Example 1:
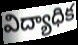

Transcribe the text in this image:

విద్యాధిక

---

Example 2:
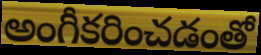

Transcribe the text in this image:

అంగీకరించడంతో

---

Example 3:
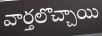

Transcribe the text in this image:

వార్తలొచ్చాయి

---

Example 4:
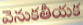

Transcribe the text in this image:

వెనుకతీయక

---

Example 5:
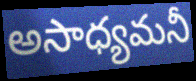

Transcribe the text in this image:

అసాధ్యమనీ